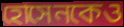
হোসেনকেও